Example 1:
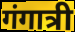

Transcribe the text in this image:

गंगात्री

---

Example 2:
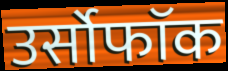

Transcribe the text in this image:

उर्सोफॉक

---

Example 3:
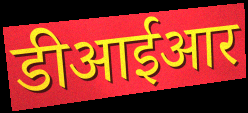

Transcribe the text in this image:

डीआईआर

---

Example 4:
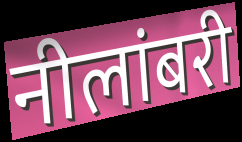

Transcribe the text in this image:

नीलांबरी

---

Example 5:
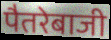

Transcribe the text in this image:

पैतरेबाजी